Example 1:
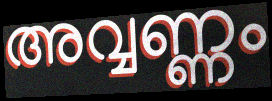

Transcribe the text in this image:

അവ്വണ്ണം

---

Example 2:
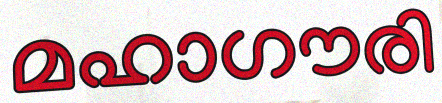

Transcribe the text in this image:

മഹാഗൗരി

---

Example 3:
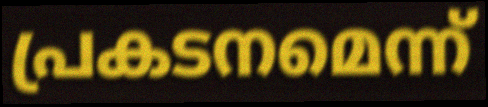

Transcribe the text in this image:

പ്രകടനമെന്ന്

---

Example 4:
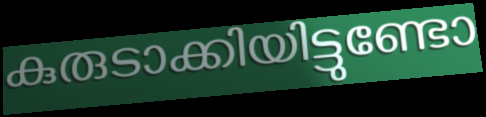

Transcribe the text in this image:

കുരുടാക്കിയിട്ടുണ്ടോ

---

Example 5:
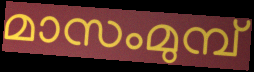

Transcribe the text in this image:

മാസംമുമ്പ്